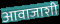
आवाजाशी